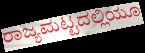
ರಾಜ್ಯಮಟ್ಟದಲ್ಲಿಯೂ